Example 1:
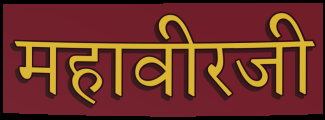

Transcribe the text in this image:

महावीरजी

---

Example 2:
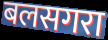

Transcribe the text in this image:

बलसगरा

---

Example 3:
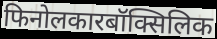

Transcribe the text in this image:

फिनोलकारबॉक्सिलिक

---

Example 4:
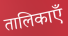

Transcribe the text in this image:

तालिकाएँ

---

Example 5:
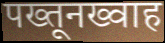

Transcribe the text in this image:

पख्तूनख्वाह